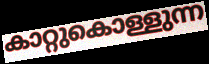
കാറ്റുകൊള്ളുന്ന